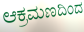
ಆಕ್ರಮಣದಿಂದ